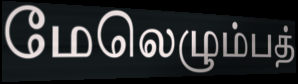
மேலெழும்பத்